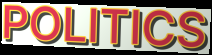
POLITICS